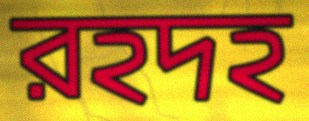
রহদহ